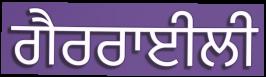
ਗੈਰਰਾਈਲੀ